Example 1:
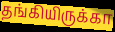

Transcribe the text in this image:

தங்கியிருக்கா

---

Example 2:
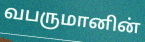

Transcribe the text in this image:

வபருமானின்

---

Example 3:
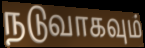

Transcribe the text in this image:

நடுவாகவும்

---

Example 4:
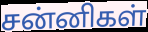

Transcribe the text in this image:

சன்னிகள்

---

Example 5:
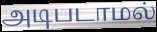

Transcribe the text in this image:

அடிபடாமல்